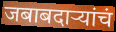
जबाबदार्‍यांचं